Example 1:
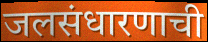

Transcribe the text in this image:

जलसंधारणाची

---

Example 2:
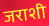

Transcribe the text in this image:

जराशी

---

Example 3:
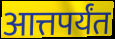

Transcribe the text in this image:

आत्तपर्यंत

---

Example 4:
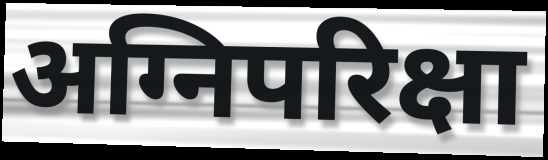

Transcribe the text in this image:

अग्निपरिक्षा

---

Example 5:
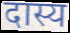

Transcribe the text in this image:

दास्य